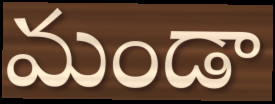
మండా